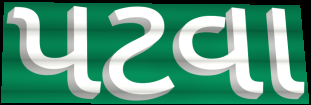
પટવા